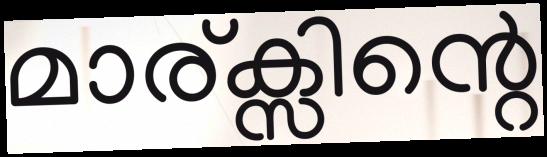
മാര്ക്സിന്റെ